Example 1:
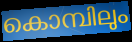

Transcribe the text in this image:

കൊമ്പിലും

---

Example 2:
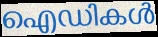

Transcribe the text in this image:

ഐഡികൾ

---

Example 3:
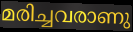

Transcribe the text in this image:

മരിച്ചവരാണു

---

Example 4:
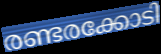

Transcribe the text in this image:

രണ്ടരക്കോടി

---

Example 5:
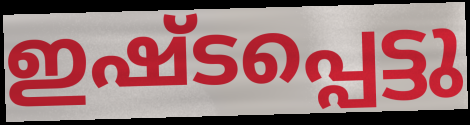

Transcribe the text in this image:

ഇഷ്ടപ്പെട്ടു